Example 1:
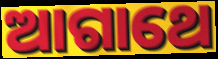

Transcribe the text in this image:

ଆଗାଥେ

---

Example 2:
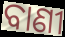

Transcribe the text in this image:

ବାଣୀ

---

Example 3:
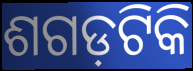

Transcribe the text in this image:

ଶଗଡ଼ଟିକି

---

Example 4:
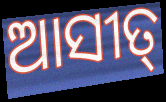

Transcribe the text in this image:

ଆସୀତ୍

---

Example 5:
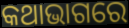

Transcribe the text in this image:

କଥାଭାଗରେ